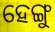
ହେଙ୍ଗୁ